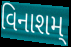
વિનાશમ્